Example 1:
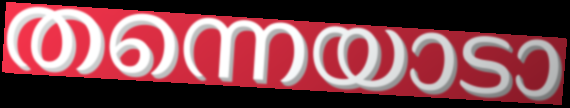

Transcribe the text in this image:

തന്നെയാടാ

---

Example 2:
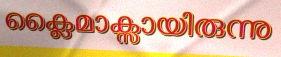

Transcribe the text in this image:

ക്ലൈമാക്സായിരുന്നു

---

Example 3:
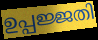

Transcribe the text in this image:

ഉപ്പജ്ജതി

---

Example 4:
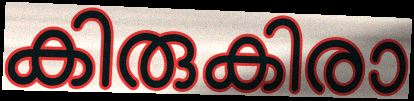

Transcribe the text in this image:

കിരുകിരാ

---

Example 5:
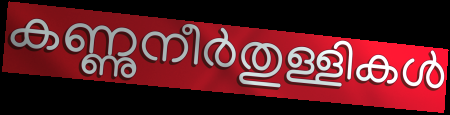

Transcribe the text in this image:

കണ്ണുനീർതുള്ളികൾ